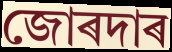
জোৰদাৰ